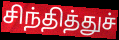
சிந்தித்துச்